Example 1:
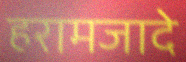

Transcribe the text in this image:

हरामजादे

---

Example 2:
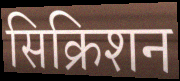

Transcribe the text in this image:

सिक्रिशन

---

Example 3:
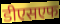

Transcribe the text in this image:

डीएसएफ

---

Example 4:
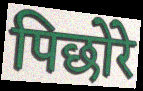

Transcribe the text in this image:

पिछोरे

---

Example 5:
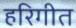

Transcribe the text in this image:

हरिगीत